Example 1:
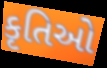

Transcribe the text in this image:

કૃતિઓ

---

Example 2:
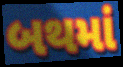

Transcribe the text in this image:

બથમાં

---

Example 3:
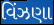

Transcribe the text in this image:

વિંઝણા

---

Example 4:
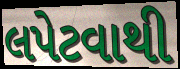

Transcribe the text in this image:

લપેટવાથી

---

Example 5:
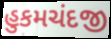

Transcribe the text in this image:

હુકમચંદજી